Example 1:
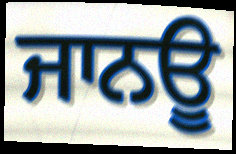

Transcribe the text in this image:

ਜਾਨਊ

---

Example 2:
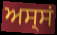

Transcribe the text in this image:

ਅਸ੍ਸਂ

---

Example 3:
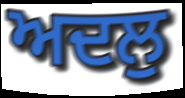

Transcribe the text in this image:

ਅਦਲੁ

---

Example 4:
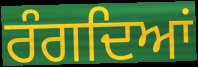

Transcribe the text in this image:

ਰੰਗਦਿਆਂ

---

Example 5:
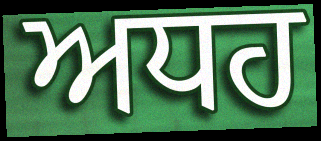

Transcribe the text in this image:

ਅਧਹ